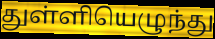
துள்ளியெழுந்து